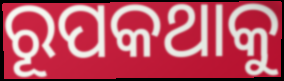
ରୂପକଥାକୁ